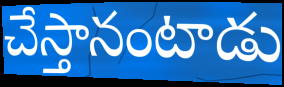
చేస్తానంటాడు